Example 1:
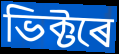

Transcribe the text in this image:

ভিক্টৰে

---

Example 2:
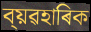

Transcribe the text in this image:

ব্য়ৱহাৰিক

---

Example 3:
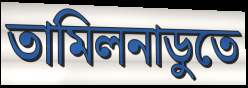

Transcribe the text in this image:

তামিলনাডুতে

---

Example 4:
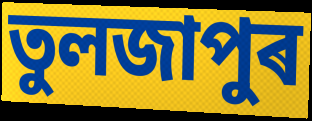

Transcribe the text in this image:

তুলজাপুৰ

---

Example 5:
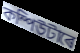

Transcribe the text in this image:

কম্পিউটাৰে